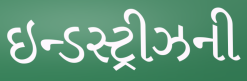
ઇન્ડસ્ટ્રીઝની